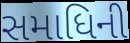
સમાધિની